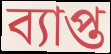
ব্যাপ্ত